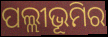
ପଲ୍ଲୀଭୂମିର